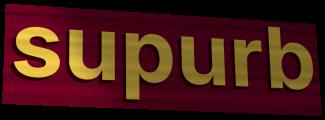
supurb